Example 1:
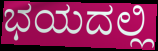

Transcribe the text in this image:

ಭಯದಲ್ಲಿ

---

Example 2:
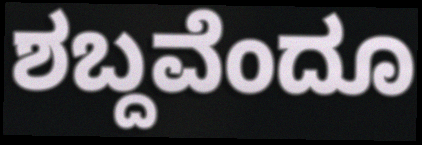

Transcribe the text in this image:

ಶಬ್ದವೆಂದೂ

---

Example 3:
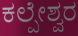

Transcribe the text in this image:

ಕಲ್ಪೇಶ್ವರ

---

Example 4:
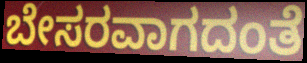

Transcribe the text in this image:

ಬೇಸರವಾಗದಂತೆ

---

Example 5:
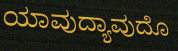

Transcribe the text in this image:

ಯಾವುದ್ಯಾವುದೊ